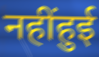
नहींहुई